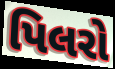
પિલરો